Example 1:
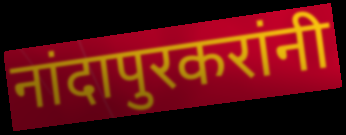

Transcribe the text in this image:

नांदापुरकरांनी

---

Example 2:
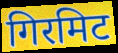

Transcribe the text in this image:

गिरमिट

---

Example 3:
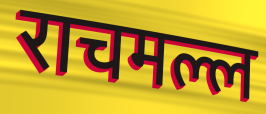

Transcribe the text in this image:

राचमल्ल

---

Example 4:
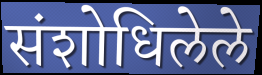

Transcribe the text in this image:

संशोधिलेले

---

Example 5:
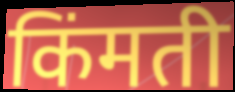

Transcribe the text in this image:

किंमती